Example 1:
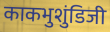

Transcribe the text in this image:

काकभुशुंडिजी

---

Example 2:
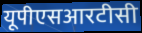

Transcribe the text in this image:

यूपीएसआरटीसी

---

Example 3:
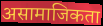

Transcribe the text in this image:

असामाजिकता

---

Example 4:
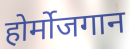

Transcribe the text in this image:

होर्मोजगान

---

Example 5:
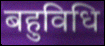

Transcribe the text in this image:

बहुविधि